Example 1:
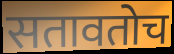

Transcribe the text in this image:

सतावतोच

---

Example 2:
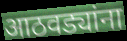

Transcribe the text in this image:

आठवड्यांना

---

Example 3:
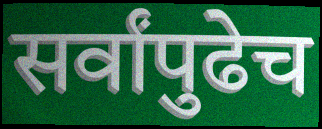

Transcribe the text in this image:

सर्वांपुढेच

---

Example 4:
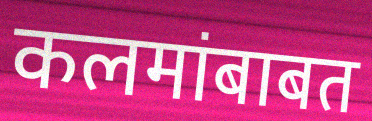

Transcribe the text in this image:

कलमांबाबत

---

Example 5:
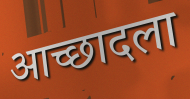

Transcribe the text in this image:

आच्छादला